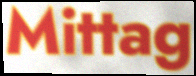
Mittag